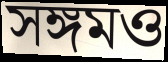
সঙ্গমও